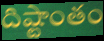
దిష్టాంతం